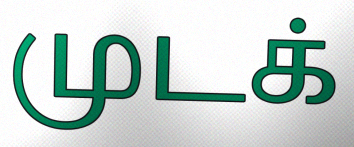
முடக்